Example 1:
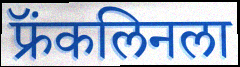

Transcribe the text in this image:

फ्रॅंकलिनला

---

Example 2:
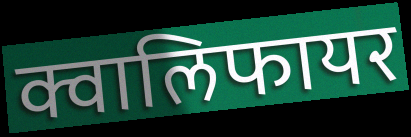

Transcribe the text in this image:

क्वालिफायर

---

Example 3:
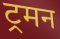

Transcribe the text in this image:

ट्रमन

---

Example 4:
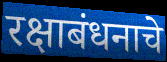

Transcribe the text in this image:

रक्षाबंधनाचे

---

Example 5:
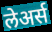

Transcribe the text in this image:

लेअर्स